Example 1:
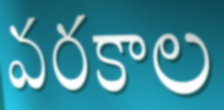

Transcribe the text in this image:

వరకాల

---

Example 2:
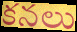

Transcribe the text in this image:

కనలు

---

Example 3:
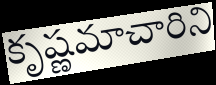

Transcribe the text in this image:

కృష్ణమాచారిని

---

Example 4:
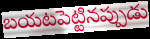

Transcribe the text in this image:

బయటపెట్టినప్పుడు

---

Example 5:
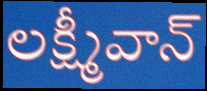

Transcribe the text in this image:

లక్ష్మీవాన్